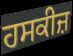
ਹਸਕੀਜ਼